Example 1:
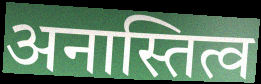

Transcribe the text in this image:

अनास्तित्व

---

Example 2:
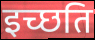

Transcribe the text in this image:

इच्छति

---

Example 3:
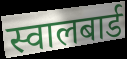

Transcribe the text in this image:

स्वालबार्ड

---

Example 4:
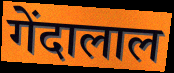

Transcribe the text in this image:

गेंदालाल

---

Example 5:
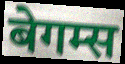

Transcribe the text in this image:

बेगम्स